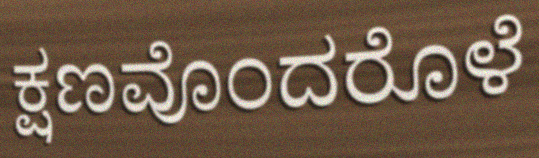
ಕ್ಷಣವೊಂದರೊಳೆ